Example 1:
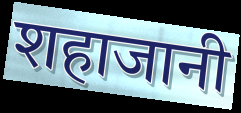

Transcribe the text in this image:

शहाजानी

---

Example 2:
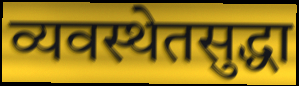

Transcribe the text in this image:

व्यवस्थेतसुद्धा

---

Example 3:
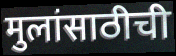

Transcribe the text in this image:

मुलांसाठीची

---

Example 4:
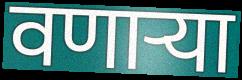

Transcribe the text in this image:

वणाऱ्या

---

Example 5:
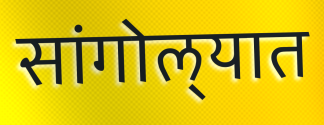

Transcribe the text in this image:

सांगोल्यात